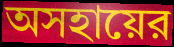
অসহায়ের